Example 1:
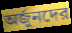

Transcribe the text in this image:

অর্জুনদের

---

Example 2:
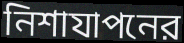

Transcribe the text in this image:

নিশাযাপনের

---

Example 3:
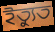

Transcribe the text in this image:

ইত্যুত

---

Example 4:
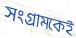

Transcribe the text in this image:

সংগ্রামকেই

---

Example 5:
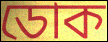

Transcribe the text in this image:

ডোক